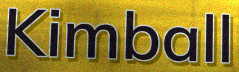
Kimball